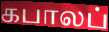
கபாலப்